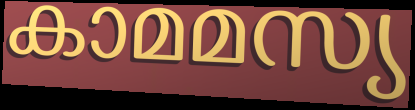
കാമമസ്യ